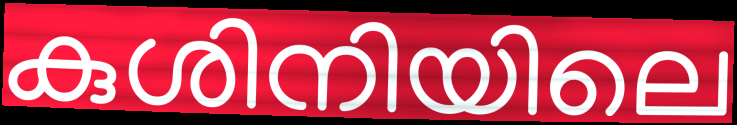
കുശിനിയിലെ